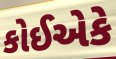
કોઈએકે